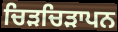
ਚਿੜਚਿੜਾਪਨ